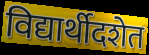
विद्यार्थीदशेत